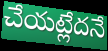
చేయట్లేదనే